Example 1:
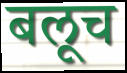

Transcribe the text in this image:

बलूच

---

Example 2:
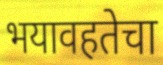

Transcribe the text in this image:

भयावहतेचा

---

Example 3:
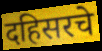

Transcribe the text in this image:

दहिसरचे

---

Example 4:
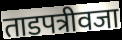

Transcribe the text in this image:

ताडपत्रीवजा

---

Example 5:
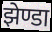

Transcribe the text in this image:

झेण्डा